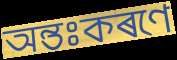
অন্তঃকৰণে